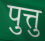
पुत्तु